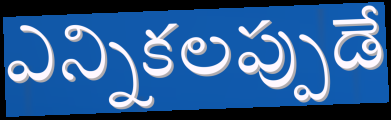
ఎన్నికలప్పుడే